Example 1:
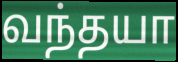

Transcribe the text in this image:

வந்தயா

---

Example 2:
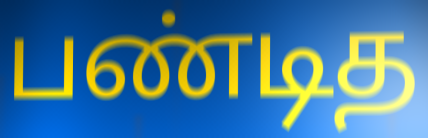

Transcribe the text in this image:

பண்டித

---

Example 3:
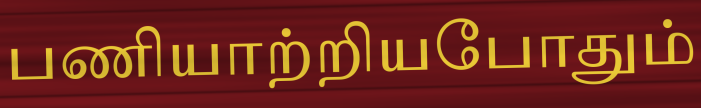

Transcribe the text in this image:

பணியாற்றியபோதும்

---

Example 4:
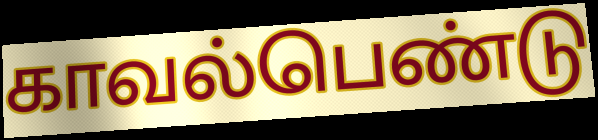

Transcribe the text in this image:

காவல்பெண்டு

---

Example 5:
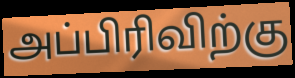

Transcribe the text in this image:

அப்பிரிவிற்கு